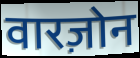
वारज़ोन